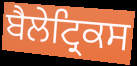
ਬੈਲੇਟ੍ਰਿਕਸ